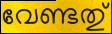
വേണ്ടതു്